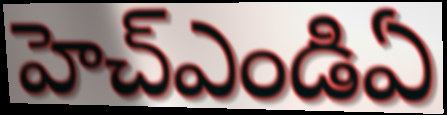
హెచ్ఎండిఏ